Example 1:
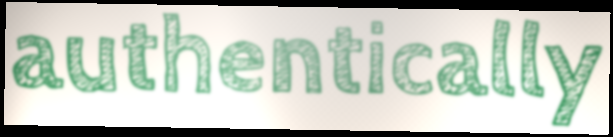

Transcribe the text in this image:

authentically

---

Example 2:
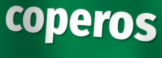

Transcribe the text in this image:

coperos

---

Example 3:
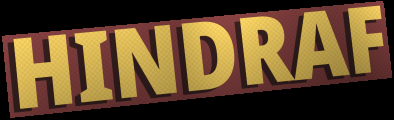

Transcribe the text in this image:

HINDRAF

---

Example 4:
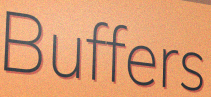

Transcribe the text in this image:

Buffers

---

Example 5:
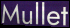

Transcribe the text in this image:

Mullet